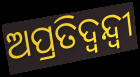
ଅପ୍ରତିଦ୍ବନ୍ଦ୍ବୀ